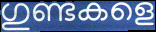
ഗുണ്ടകളെ